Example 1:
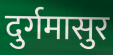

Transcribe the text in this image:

दुर्गमासुर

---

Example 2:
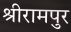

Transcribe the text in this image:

श्रीरामपुर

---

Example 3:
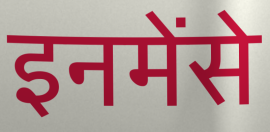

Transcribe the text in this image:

इनमेंसे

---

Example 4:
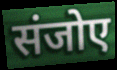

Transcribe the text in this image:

संजोए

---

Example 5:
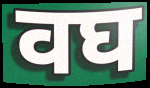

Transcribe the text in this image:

वघ